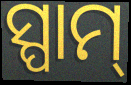
ସ୍ପାମ୍